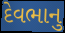
દેવભાનુ